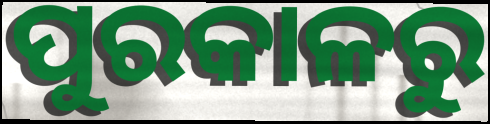
ପୁରକାଳରୁ